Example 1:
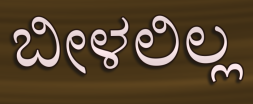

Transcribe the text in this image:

ಬೀಳಲಿಲ್ಲ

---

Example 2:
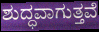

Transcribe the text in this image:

ಶುದ್ಧವಾಗುತ್ತವೆ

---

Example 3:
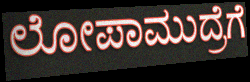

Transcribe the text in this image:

ಲೋಪಾಮುದ್ರೆಗೆ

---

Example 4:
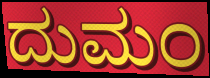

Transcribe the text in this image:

ದುಮಂ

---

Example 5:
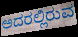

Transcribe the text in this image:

ಅದರಲ್ಲಿರುವ